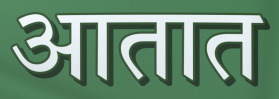
आतात